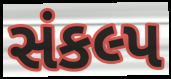
સંકલ્પ